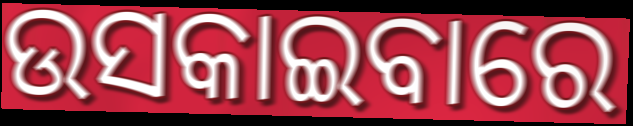
ଉସକାଇବାରେ